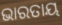
ଭାରତାୟ